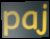
paj